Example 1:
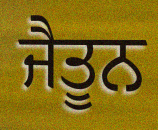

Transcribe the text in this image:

ਜੈਤੂਨ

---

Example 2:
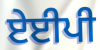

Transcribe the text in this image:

ਏਈਪੀ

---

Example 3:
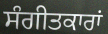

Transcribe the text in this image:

ਸੰਗੀਤਕਾਰਾਂ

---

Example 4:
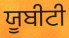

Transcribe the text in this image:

ਯੂਬੀਟੀ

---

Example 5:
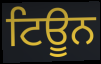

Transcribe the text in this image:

ਟਿਊਨ